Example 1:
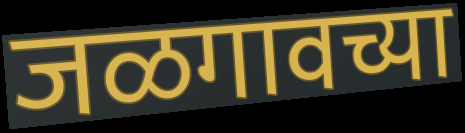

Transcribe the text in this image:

जळगावच्या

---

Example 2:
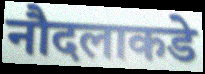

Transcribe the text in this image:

नौदलाकडे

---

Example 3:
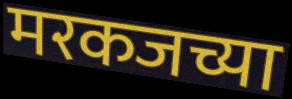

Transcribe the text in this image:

मरकजच्या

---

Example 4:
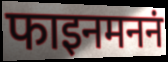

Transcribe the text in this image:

फाइनमननं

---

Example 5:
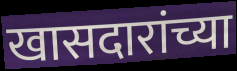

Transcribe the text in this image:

खासदारांच्या